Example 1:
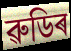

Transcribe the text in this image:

ৱুডিৰ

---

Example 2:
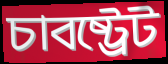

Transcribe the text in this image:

চাবষ্ট্ৰেট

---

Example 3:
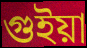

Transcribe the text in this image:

গুইয়া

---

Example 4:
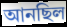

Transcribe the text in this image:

আনছিল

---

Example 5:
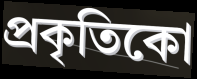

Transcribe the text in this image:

প্ৰকৃতিকো